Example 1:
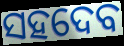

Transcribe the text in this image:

ସହଦେବ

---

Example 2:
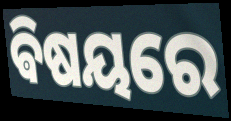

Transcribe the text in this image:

ଵିଷୟରେ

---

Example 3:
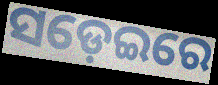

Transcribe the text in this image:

ସଡ଼େଇରେ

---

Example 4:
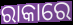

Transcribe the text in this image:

ରାକାରେ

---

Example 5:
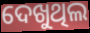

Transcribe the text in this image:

ଦେଖୁଥିଲ